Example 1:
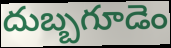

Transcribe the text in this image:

దుబ్బగూడెం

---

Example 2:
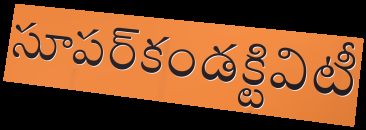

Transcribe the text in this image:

సూపర్‌కండక్టివిటీ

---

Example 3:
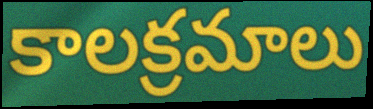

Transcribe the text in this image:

కాలక్రమాలు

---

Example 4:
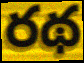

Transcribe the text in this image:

రథ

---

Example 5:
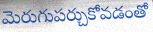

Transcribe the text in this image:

మెరుగుపర్చుకోవడంతో